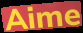
Aime